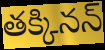
తక్కినన్